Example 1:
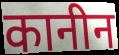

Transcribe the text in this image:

कानीन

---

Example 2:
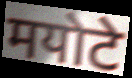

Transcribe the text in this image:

मयोटे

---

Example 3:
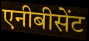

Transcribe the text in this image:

एनीबीसेंट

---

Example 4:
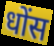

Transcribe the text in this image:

धोंस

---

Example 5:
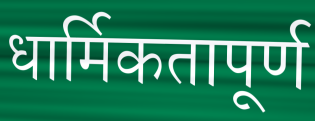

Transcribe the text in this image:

धार्मिकतापूर्ण